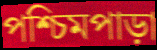
পশ্চিমপাড়া